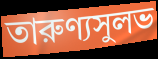
তারুণ্যসুলভ